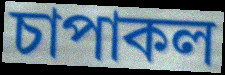
চাপাকল